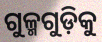
ଗୁଳ୍ମଗୁଡ଼ିକୁ